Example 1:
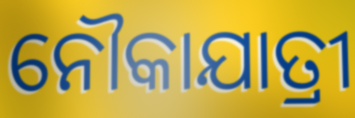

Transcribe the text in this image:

ନୌକାଯାତ୍ରୀ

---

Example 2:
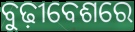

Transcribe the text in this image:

ବୁଢ଼ୀବେଶରେ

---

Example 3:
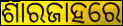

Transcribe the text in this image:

ଶାରଜାହରେ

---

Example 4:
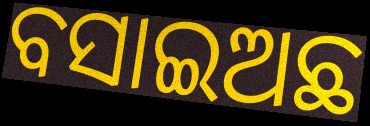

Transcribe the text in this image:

ବସାଇଅଛ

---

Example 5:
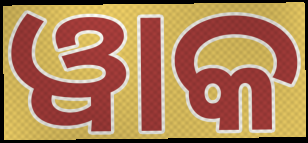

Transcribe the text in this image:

ୱାକ